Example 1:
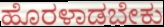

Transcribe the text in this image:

ಹೊರಳಾಡಬೇಕು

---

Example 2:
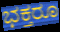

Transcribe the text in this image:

ಭಕ್ತರೂ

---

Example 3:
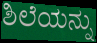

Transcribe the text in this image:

ಶಿಲೆಯನ್ನು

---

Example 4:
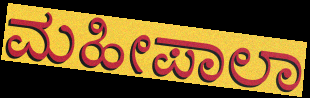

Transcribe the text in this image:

ಮಹೀಪಾಲಾ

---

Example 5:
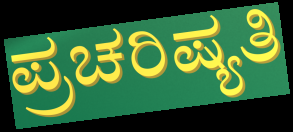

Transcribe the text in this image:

ಪ್ರಚರಿಷ್ಯತಿ